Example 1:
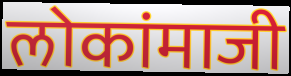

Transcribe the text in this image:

लोकांमाजी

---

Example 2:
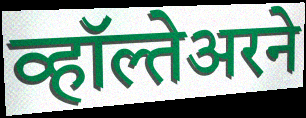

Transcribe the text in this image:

व्हॉल्तेअरने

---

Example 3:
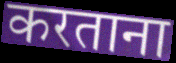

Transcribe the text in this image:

करताना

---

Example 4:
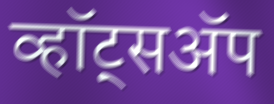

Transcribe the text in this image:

व्हॉट्सॲप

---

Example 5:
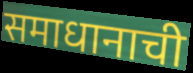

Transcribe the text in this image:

समाधानाची